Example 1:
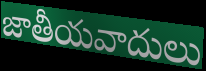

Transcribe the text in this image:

జాతీయవాదులు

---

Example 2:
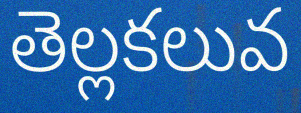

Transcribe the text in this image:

తెల్లకలువ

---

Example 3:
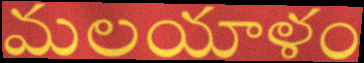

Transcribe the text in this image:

మలయాళం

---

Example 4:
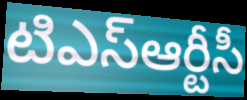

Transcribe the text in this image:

టిఎస్ఆర్టీసీ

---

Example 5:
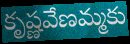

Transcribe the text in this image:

కృష్ణవేణమ్మకు